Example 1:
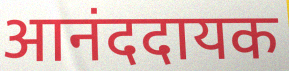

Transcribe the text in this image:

आनंददायक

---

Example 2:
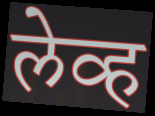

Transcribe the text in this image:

लेव्ह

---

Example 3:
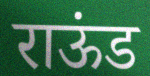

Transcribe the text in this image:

राऊंड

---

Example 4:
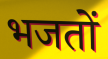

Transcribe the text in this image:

भजतों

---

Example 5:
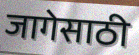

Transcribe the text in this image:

जागेसाठी